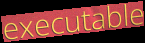
executable